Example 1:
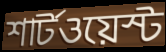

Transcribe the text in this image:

শার্টওয়েস্ট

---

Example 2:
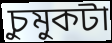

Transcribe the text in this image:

চুমুকটা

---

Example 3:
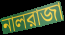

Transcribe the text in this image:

নালরাজা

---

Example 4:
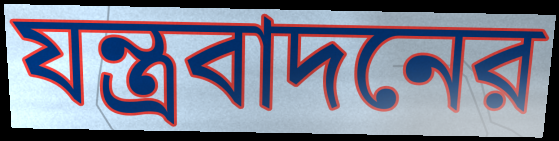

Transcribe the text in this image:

যন্ত্রবাদনের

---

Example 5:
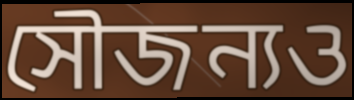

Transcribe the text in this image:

সৌজন্যও